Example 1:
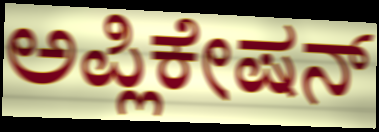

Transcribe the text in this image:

ಅಪ್ಲಿಕೇಷನ್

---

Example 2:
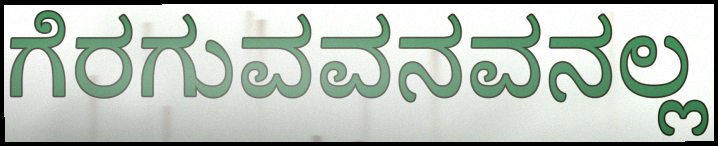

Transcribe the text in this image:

ಗೆರಗುವವನವನಲ್ಲ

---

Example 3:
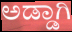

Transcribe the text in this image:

ಅಡ್ಡಾಗಿ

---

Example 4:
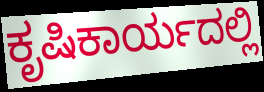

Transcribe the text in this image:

ಕೃಷಿಕಾರ್ಯದಲ್ಲಿ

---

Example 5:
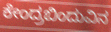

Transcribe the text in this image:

ಕೇಂದ್ರಬಿಂದುವಿನ